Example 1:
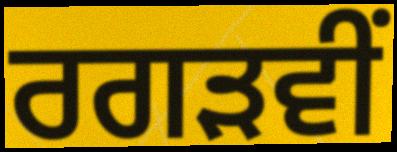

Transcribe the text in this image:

ਰਗੜਵੀਂ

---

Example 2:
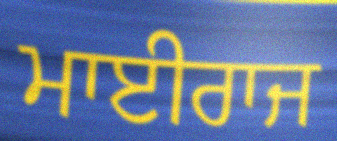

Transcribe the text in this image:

ਮਾਈਰਾਜ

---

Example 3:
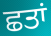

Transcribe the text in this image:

ਛਤਾਂ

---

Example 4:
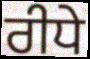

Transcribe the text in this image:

ਰੀਧੇ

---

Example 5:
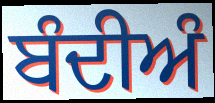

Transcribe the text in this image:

ਬੰਦੀਅੰ